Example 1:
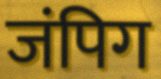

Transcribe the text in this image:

जंपिग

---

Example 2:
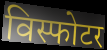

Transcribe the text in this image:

विस्फोटर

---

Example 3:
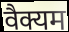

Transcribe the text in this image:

वैक्यम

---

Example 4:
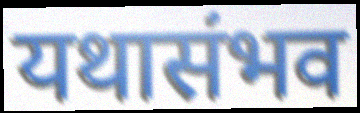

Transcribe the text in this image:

यथासंभव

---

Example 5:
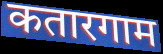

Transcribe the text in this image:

कतारगाम